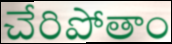
చేరిపోతాం